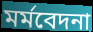
মৰ্মবেদনা